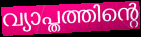
വ്യാപ്തത്തിന്റെ